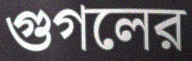
গুগলের